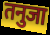
तनुजा